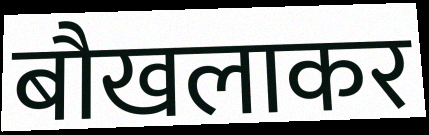
बौखलाकर